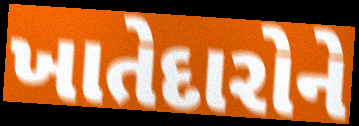
ખાતેદારોને